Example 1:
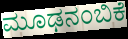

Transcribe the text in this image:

ಮೂಢನಂಬಿಕೆ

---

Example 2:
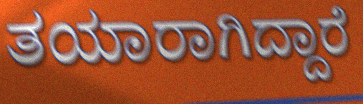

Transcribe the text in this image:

ತಯಾರಾಗಿದ್ದಾರೆ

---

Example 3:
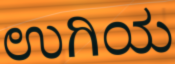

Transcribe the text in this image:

ಉಗಿಯ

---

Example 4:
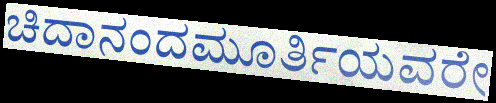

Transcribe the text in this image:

ಚಿದಾನಂದಮೂರ್ತಿಯವರೇ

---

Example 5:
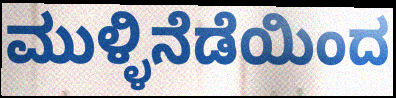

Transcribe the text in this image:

ಮುಳ್ಳಿನೆಡೆಯಿಂದ